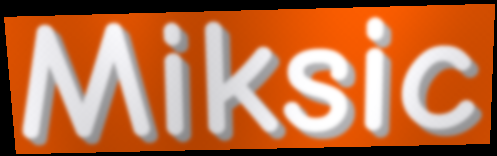
Miksic